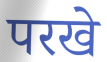
परखे